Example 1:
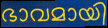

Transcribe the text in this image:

ഭാവമായി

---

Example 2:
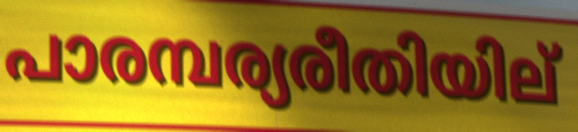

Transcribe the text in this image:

പാരമ്പര്യരീതിയില്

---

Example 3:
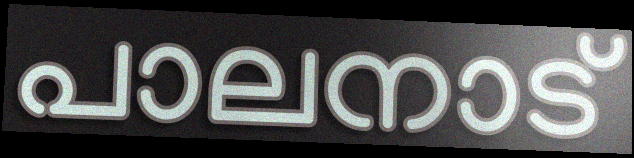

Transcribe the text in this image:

പാലനാട്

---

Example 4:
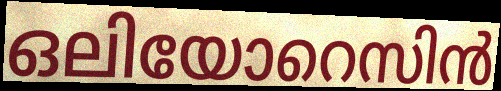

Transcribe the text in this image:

ഒലിയോറെസിൻ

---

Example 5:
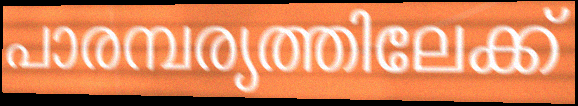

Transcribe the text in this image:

പാരമ്പര്യത്തിലേക്ക്